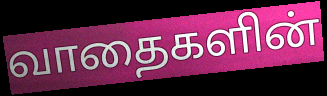
வாதைகளின்